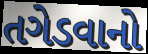
તગેડવાનો